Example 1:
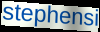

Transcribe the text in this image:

stephensi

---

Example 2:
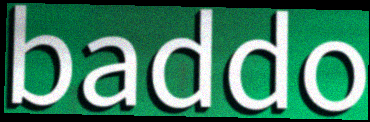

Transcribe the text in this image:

baddo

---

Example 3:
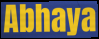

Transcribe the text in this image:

Abhaya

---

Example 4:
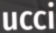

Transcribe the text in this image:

ucci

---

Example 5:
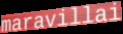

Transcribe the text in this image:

maravillai